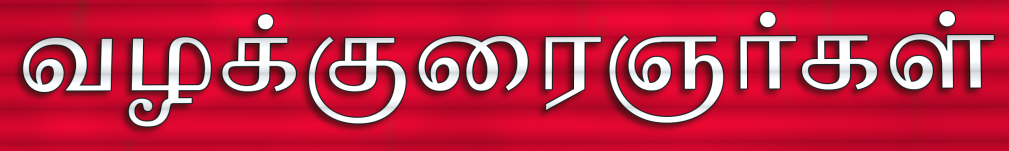
வழக்குரைஞர்கள்